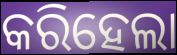
କରିହେଲା